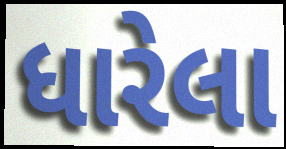
ધારેલા